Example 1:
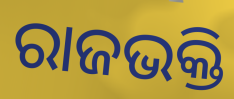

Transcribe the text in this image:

ରାଜଭକ୍ତି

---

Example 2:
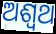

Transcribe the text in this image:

ଅଶ୍ବଥ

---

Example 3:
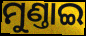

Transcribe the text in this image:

ମୁଣ୍ତାଇ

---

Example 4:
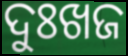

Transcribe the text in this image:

ଦୁଃଖଜ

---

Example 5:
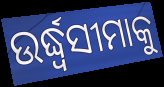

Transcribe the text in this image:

ଉର୍ଦ୍ଧ୍ୱସୀମାକୁ